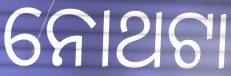
ନୋଥଟା